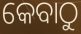
କେବାଠୁ